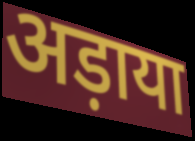
अड़ाया